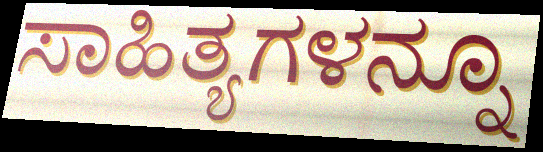
ಸಾಹಿತ್ಯಗಳನ್ನೂ